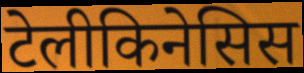
टेलीकिनेसिस